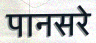
पानसरे